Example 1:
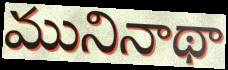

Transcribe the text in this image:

మునినాథా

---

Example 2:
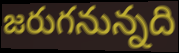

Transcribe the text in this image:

జరుగనున్నది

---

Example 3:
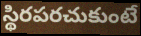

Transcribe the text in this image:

స్థిరపరచుకుంటే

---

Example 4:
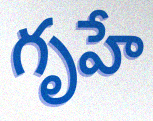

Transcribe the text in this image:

గృహే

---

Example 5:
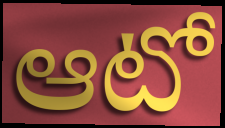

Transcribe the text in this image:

ఆటో